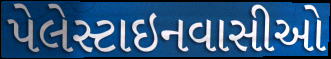
પેલેસ્ટાઇનવાસીઓ